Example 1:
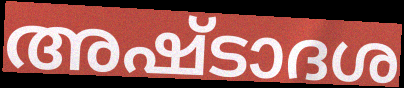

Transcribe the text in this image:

അഷ്ടാദശ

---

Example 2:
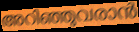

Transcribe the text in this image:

അറിഞ്ഞുവരാൻ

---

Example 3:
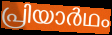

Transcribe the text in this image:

പ്രിയാർഥം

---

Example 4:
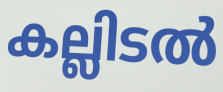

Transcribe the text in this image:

കല്ലിടൽ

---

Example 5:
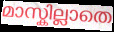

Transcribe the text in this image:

മാസ്കില്ലാതെ